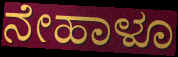
ನೇಹಾಳೂ